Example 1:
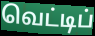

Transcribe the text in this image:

வெட்டிப்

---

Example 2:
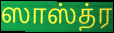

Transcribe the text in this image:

ஸாஸ்த்ர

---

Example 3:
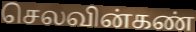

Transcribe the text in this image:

செலவின்கண்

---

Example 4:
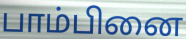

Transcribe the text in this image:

பாம்பினை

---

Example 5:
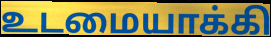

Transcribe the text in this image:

உடமையாக்கி